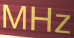
MHz